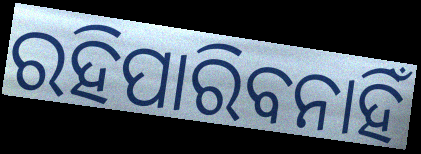
ରହିପାରିବନାହିଁ